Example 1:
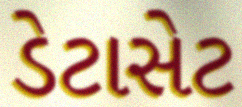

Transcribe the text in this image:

ડેટાસેટ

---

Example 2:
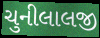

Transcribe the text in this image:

ચુનીલાલજી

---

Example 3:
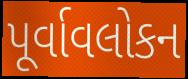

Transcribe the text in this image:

પૂર્વાવલોકન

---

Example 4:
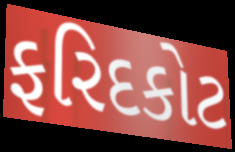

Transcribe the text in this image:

ફરિદકોટ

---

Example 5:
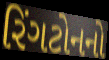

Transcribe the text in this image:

રિંગટોનનો